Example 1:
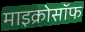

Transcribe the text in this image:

माइक्रोसॉफ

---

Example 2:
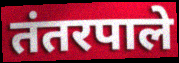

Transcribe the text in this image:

तंतरपाले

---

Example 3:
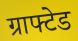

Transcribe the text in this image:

ग्राफ्टेड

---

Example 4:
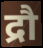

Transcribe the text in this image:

द्रौ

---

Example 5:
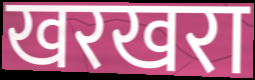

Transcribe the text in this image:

खरखरा